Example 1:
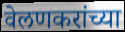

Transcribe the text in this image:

वेलणकरांच्या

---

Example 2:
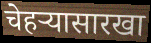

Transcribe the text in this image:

चेहऱ्यासारखा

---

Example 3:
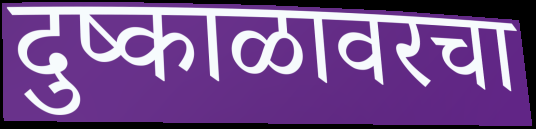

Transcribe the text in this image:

दुष्काळावरचा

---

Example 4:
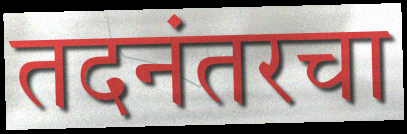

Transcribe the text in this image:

तदनंतरचा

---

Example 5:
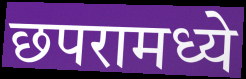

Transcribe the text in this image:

छपरामध्ये